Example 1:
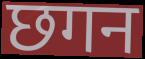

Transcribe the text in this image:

छगन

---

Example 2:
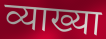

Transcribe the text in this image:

व्याख्या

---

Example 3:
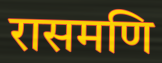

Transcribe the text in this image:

रासमणि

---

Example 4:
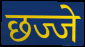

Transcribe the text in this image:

छज्जे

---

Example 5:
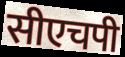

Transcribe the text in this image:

सीएचपी